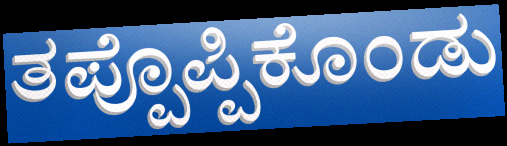
ತಪ್ಪೊಪ್ಪಿಕೊಂಡು